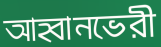
আহ্বানভেরী